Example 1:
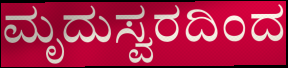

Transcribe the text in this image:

ಮೃದುಸ್ವರದಿಂದ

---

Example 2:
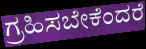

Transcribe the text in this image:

ಗ್ರಹಿಸಬೇಕೆಂದರೆ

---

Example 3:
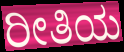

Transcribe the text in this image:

ರೀತಿಯ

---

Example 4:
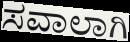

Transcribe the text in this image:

ಸವಾಲಾಗಿ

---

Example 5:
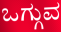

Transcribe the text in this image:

ಒಗ್ಗುವ